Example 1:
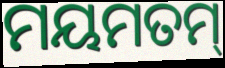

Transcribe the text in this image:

ମୟମତମ୍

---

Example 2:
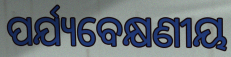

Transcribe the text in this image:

ପର୍ଯ୍ୟବେକ୍ଷଣୀୟ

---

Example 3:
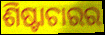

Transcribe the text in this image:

ଶିଷ୍ଟାଚାରର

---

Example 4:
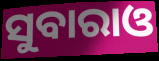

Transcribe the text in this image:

ସୁବାରାଓ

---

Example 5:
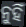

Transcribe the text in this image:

ନୁହିଁ